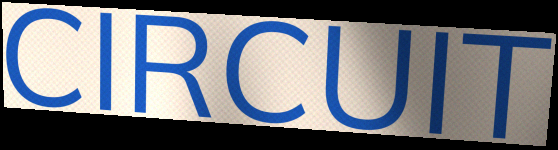
CIRCUIT